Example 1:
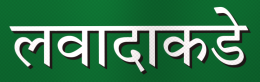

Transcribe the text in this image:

लवादाकडे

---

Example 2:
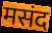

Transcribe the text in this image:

मसंद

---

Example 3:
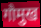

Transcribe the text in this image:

गौमुख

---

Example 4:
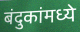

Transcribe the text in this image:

बंदुकांमध्ये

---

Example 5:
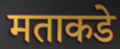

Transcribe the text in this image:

मताकडे